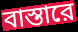
বাস্তারে